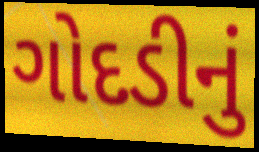
ગોદડીનું